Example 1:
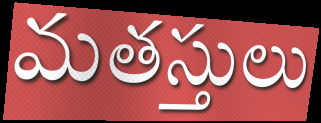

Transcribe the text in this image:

మతస్తులు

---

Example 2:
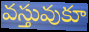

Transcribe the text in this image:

వస్తువుకూ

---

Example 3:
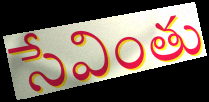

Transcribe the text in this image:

సేవింతు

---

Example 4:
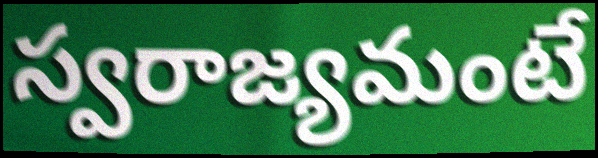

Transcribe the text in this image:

స్వరాజ్యమంటే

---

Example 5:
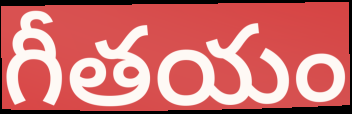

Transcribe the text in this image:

గీతయం